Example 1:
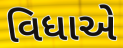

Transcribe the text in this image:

વિધાએ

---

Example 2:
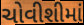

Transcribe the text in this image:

ચોવીશીમાં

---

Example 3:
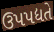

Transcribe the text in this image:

ઉપપદ્યતે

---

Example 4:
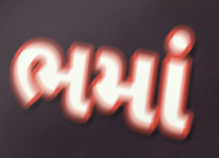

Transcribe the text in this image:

ભમાં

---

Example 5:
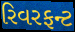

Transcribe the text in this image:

રિવરફન્ટ